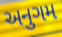
અનુગમ